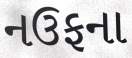
નઉફના